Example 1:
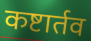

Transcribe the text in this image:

कष्टार्तव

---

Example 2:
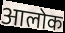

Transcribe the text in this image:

आलोक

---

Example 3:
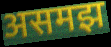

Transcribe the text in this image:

असमझ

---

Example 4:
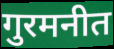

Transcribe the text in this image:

गुरमनीत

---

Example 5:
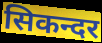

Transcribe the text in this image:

सिकन्दर